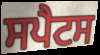
ਸਪੈਟਸ